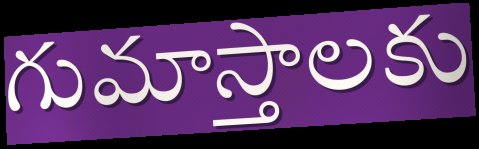
గుమాస్తాలకు